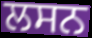
ਲਸਨ